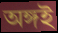
অঙ্গই